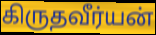
கிருதவீர்யன்